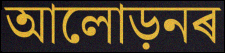
আলোড়নৰ